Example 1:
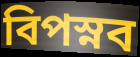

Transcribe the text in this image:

বিপস্নব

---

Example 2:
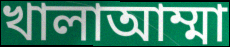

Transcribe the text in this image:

খালাআম্মা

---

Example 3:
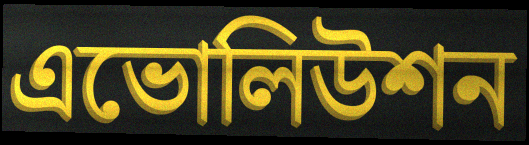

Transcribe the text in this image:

এভোলিউশন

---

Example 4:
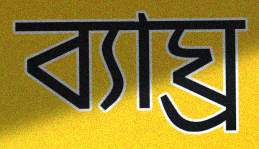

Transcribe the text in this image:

ব্যাঘ্র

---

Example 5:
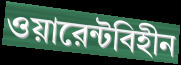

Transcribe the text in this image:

ওয়ারেন্টবিহীন